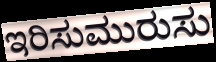
ಇರಿಸುಮುರುಸು